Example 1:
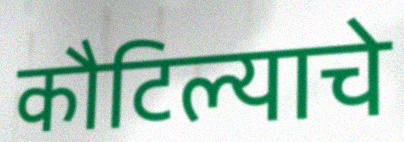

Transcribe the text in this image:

कौटिल्याचे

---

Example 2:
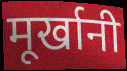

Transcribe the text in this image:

मूर्खानी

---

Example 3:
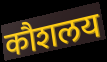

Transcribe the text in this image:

कौशलय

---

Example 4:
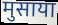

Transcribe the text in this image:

मुसाया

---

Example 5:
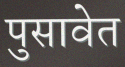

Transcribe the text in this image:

पुसावेत